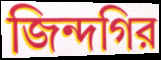
জিন্দগির